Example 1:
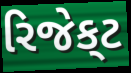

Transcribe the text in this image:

રિજેક્‌ટ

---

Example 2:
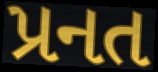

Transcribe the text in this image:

પ્રનત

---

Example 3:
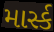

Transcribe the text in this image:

માર્સ્ક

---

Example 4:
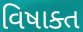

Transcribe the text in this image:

વિષાક્ત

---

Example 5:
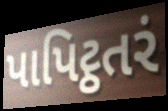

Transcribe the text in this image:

પાપિટ્ઠતરં